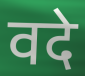
वदे